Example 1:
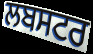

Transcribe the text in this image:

ਲਬਸਟਰ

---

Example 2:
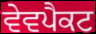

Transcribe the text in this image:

ਵੇਵਪੈਕਟ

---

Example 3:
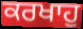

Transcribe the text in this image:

ਕਰਖਾਹੁ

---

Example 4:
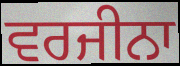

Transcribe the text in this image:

ਵਰਜੀਨਾ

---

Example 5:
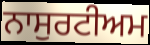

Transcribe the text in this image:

ਨਾਸੁਰਟੀਅਮ